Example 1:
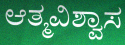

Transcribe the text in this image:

ಆತ್ಮವಿಶ್ವಾಸ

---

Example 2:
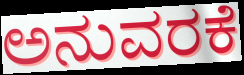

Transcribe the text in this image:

ಅನುವರಕೆ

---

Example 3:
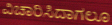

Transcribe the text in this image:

ವಿಚಾರಿಸಿದಾಗಲೂ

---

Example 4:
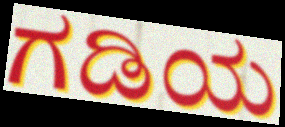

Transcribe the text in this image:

ಗಡಿಯ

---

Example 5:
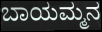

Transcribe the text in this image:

ಬಾಯಮ್ಮನ